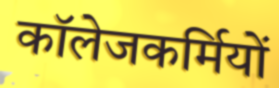
कॉलेजकर्मियों